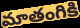
మాతంగికి